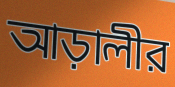
আড়ালীর